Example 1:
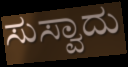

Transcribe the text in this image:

ಸುಸ್ವಾದು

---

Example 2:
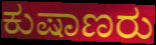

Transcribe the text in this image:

ಕುಷಾಣರು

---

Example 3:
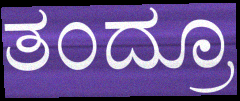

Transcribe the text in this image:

ತಂದ್ರೂ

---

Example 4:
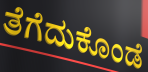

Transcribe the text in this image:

ತೆಗೆದುಕೊಂಡೆ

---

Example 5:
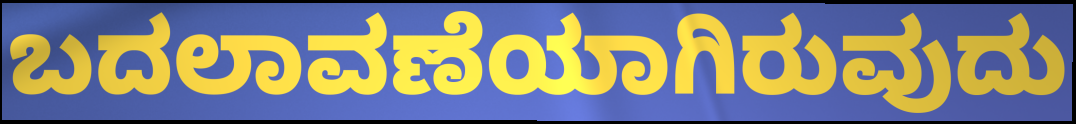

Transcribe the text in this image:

ಬದಲಾವಣೆಯಾಗಿರುವುದು